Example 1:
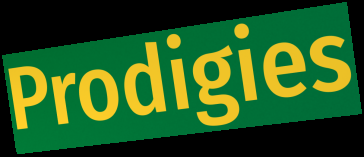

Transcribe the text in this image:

Prodigies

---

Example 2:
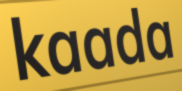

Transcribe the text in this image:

kaada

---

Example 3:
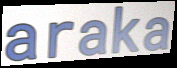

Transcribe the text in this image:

araka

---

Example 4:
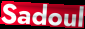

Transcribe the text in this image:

Sadoul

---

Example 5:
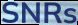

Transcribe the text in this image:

SNRs